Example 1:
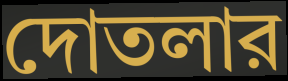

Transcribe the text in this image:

দোতলার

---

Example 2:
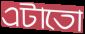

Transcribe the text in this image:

এটাতো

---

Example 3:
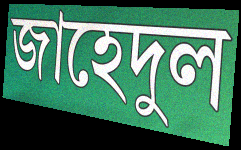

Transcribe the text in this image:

জাহেদুল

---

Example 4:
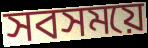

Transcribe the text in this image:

সবসময়ে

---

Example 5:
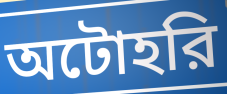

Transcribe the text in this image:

অটোহরি